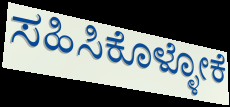
ಸಹಿಸಿಕೊಳ್ಳೋಕೆ